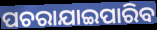
ପଚରାଯାଇପାରିବ